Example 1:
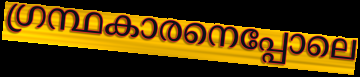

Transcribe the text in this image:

ഗ്രന്ഥകാരനെപ്പോലെ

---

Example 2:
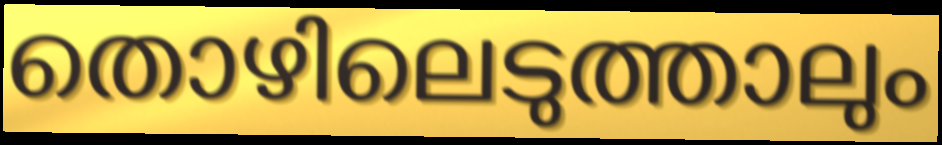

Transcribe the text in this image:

തൊഴിലെടുത്താലും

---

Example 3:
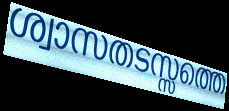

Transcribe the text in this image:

ശ്വാസതടസ്സത്തെ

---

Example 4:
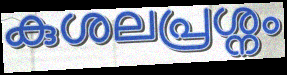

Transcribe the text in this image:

കുശലപ്രശ്നം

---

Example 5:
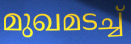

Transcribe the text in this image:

മുഖമടച്ച്